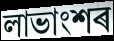
লাভাংশৰ